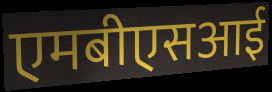
एमबीएसआई